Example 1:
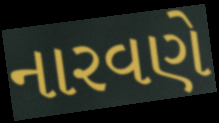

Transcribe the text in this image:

નારવણે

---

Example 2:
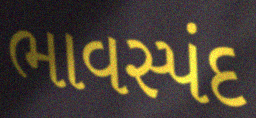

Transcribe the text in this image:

ભાવસ્પંદ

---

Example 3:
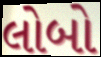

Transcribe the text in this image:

લોબો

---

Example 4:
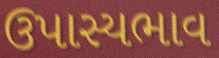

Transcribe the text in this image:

ઉપાસ્યભાવ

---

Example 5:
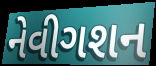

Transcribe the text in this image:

નેવીગશન